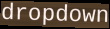
dropdown